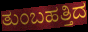
ತುಂಬಹತ್ತಿದ